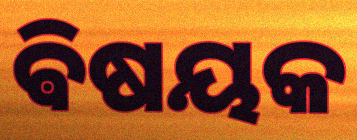
ଵିଷୟକ